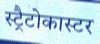
स्ट्रैटोकास्टर